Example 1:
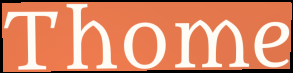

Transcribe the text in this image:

Thome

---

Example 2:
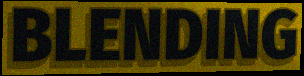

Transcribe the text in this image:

BLENDING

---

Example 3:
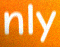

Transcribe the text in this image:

nly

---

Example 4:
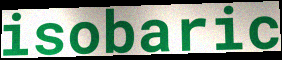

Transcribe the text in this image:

isobaric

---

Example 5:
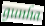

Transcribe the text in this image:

gunha